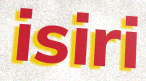
isiri